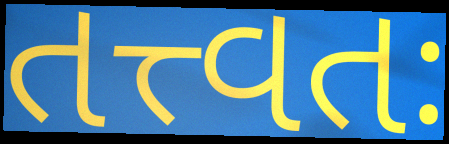
તત્ત્વતઃ